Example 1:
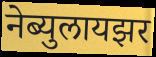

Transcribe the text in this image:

नेब्युलायझर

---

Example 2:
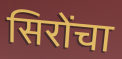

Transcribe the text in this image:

सिरोंचा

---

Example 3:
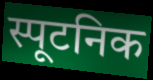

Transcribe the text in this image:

स्पूटनिक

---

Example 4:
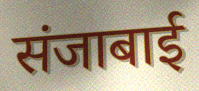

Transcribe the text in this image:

संजाबाई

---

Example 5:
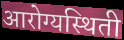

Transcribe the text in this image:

आरोग्यस्थिती